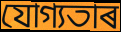
যোগ্যতাৰ